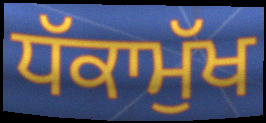
ਧੱਕਾਮੁੱਖ